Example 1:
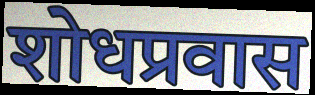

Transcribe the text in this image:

शोधप्रवास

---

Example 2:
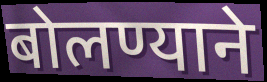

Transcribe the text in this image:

बोलण्याने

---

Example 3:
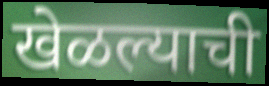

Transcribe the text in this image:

खेळल्याची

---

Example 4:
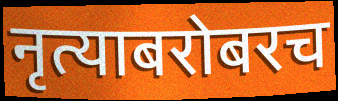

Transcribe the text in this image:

नृत्याबरोबरच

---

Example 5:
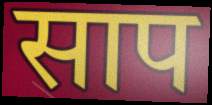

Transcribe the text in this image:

साप